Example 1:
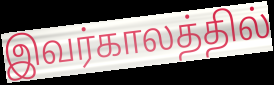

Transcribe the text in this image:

இவர்காலத்தில்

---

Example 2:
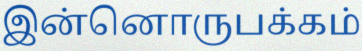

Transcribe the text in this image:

இன்னொருபக்கம்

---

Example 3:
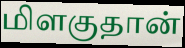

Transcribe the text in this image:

மிளகுதான்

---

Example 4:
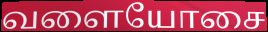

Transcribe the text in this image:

வளையோசை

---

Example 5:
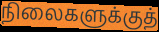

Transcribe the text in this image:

நிலைகளுக்குத்